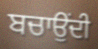
ਬਚਾਉਂਦੀ